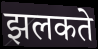
झलकते